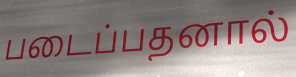
படைப்பதனால்